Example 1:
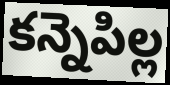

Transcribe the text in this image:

కన్నెపిల్ల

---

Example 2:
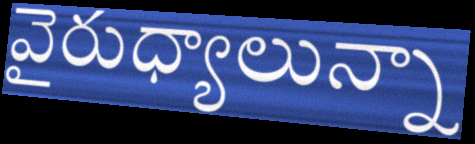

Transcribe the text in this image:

వైరుధ్యాలున్నా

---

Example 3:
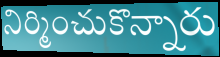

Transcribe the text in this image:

నిర్మించుకొన్నారు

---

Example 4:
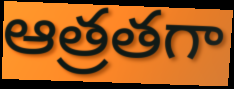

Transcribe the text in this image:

ఆత్రతగా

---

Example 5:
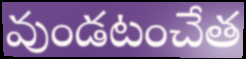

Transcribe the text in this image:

వుండటంచేత